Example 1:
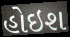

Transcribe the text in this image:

હોઇશ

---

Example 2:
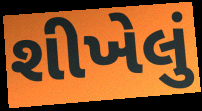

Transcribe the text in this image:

શીખેલું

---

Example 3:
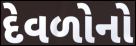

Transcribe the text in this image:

દેવળોનો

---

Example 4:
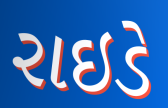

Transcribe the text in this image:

રાઇડે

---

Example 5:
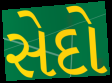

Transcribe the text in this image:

સેદો